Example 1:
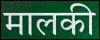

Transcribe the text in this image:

मालकी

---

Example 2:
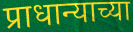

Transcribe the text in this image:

प्राधान्याच्या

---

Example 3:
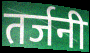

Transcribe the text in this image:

तर्जनी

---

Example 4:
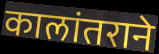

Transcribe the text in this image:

कालांतराने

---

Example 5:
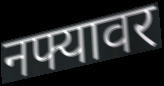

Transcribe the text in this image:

नफ्यावर